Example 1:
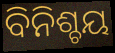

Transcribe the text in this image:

ବିନିଶ୍ଚୟ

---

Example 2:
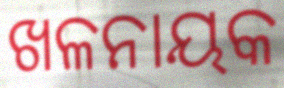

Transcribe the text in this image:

ଖଳନାୟକ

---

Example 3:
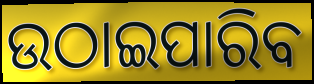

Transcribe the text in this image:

ଉଠାଇପାରିବ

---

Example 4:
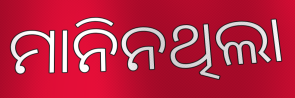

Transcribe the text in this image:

ମାନିନଥିଲା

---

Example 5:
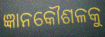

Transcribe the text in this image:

ଜ୍ଞାନକୌଶଳକୁ